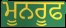
ਮੂਨਰੂਫ